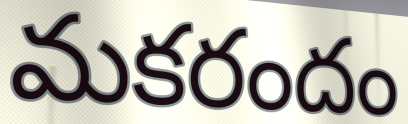
మకరందం